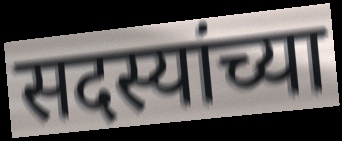
सदस्यांच्या